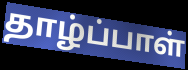
தாழ்ப்பாள்